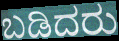
ಬಡಿದರು